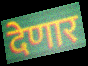
देणार